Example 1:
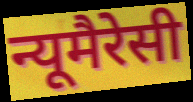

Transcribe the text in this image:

न्यूमैरेसी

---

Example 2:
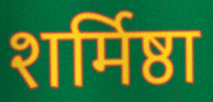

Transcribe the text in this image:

शर्मिष्ठा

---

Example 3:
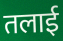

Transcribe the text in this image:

तलाई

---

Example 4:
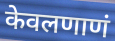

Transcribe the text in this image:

केवलणाणं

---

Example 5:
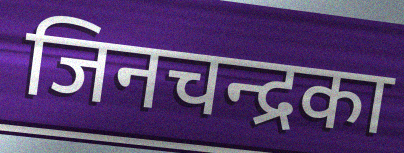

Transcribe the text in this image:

जिनचन्द्रका